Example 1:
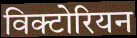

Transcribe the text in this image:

विक्टोरियन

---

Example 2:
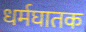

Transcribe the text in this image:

धर्मघातक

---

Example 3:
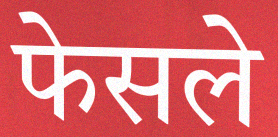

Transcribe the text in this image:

फेसले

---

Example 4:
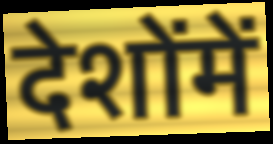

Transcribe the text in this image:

देशोंमें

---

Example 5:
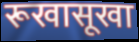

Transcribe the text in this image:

रूखासूखा